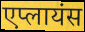
एप्लायंस